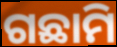
ଗଛାମି